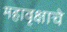
महावृक्षाचे